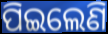
ପିଇଲେଣି